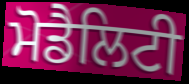
ਮੋਡੈਲਿਟੀ